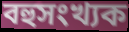
বহুসংখ্যক